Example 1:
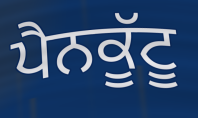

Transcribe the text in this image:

ਪੈਨਕੂੱਟੂ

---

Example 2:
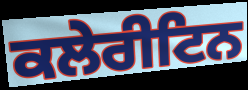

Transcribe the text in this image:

ਕਲੇਰੀਟਿਨ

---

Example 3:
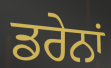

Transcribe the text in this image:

ਡਰੇਨਾਂ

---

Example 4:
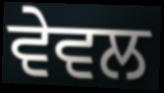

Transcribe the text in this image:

ਵੇਵਲ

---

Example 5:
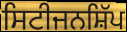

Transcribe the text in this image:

ਸਿਟੀਜਨਸ਼ਿੱਪ